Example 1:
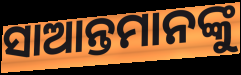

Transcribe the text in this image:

ସାଆନ୍ତମାନଙ୍କୁ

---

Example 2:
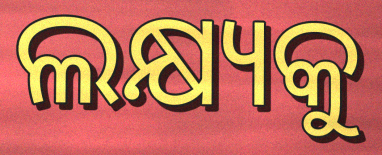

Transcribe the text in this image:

ଲକ୍ଷ୍ୟକୁ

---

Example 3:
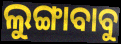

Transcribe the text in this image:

ଲୁଙ୍ଗାବାବୁ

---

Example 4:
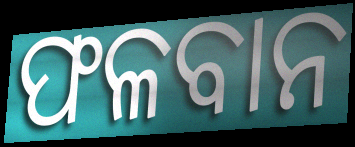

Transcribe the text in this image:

ଫଳବାନ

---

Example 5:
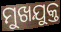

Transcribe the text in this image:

ମୁଖଯୁକ୍ତ